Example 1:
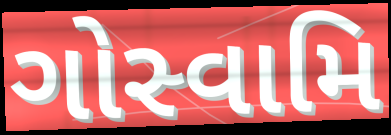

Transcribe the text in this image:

ગોસ્વામિ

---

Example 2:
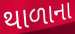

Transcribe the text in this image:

થાળાના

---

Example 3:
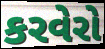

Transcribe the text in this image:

કરવેરો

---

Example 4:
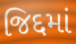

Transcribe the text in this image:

જિદ્દમાં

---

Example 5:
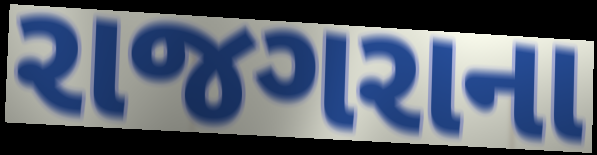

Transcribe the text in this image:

રાજગરાના